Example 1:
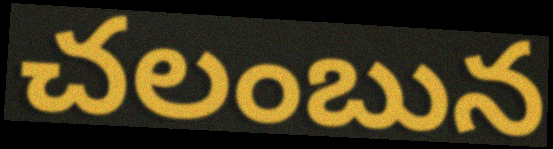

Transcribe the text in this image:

చలంబున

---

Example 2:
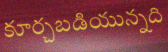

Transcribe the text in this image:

కూర్చబడియున్నది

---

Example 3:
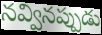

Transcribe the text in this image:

నవ్వినప్పుడు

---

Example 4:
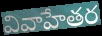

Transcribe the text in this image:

వివాహేతర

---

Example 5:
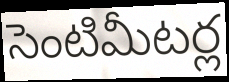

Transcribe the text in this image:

సెంటిమీటర్ల